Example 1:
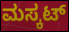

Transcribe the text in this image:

ಮಸ್ಕಟ್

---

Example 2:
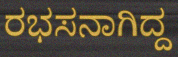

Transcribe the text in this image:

ರಭಸನಾಗಿದ್ದ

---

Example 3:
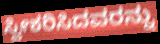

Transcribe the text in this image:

ಸ್ವೀಕರಿಸಿದವರನ್ನು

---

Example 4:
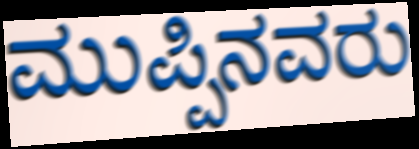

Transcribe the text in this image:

ಮುಪ್ಪಿನವರು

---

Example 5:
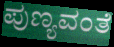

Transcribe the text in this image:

ಪುಣ್ಯವಂತೆ